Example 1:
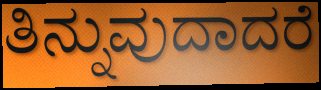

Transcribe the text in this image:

ತಿನ್ನುವುದಾದರೆ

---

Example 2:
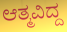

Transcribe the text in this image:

ಆತ್ಮವಿದ್ದ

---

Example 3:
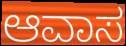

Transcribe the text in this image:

ಆವಾಸ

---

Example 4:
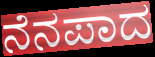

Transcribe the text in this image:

ನೆನಪಾದ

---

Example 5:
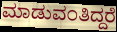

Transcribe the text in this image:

ಮಾಡುವಂತಿದ್ದರೆ